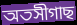
অতসীগাছ